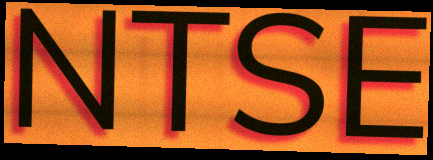
NTSE